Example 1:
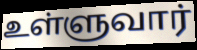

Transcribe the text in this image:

உள்ளுவார்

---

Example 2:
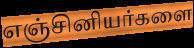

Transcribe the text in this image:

எஞ்சினியர்களை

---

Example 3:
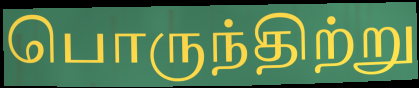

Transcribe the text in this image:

பொருந்திற்று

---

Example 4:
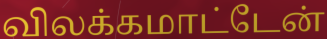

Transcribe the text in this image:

விலக்கமாட்டேன்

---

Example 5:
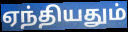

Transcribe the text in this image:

ஏந்தியதும்